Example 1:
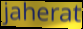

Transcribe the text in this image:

jaherat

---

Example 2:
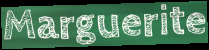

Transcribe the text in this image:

Marguerite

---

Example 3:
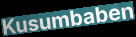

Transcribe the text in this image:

Kusumbaben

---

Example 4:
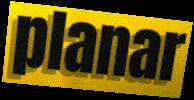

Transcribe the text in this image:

planar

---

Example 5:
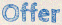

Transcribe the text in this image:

Offer